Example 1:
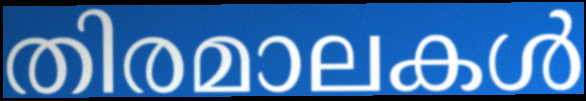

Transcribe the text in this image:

തിരമാലകൾ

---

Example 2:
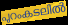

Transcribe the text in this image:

പുറംകടലിൽ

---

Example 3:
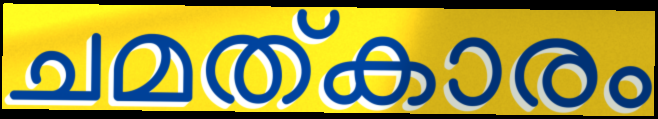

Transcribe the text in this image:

ചമത്കാരം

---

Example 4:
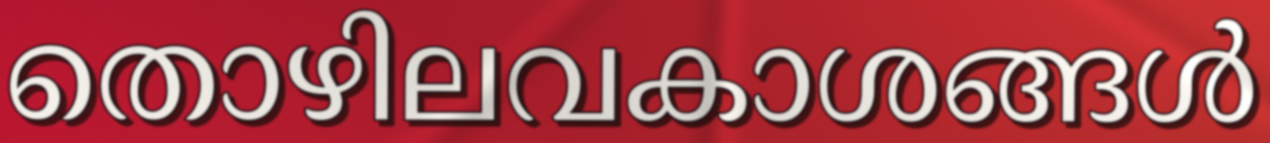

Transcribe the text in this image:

തൊഴിലവകാശങ്ങൾ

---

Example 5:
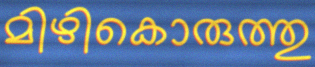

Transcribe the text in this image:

മിഴികൊരുത്തു